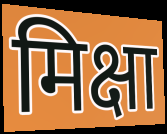
मिक्षा